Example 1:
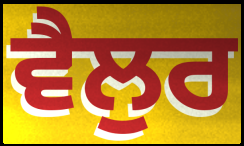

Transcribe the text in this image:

ਵੈਲੁਰ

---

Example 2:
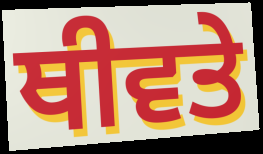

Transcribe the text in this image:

ਥੀਵਤੇ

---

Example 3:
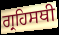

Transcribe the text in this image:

ਗ੍ਰਹਿਸਥੀ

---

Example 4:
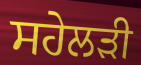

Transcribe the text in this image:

ਸਹੇਲੜੀ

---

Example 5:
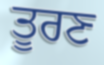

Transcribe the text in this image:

ਤੂਰਣ